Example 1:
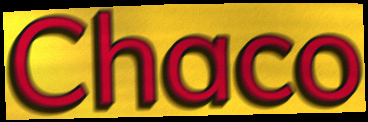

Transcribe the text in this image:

Chaco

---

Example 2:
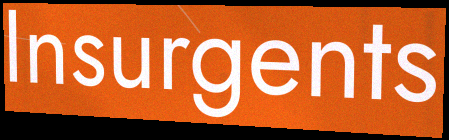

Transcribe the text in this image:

Insurgents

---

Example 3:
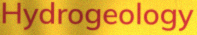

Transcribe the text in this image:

Hydrogeology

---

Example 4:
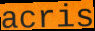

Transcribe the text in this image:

acris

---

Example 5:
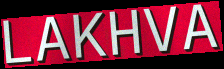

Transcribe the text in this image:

LAKHVA